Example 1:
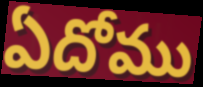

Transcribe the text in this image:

ఏదోము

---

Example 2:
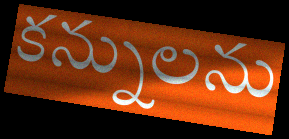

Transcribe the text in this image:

కన్నులను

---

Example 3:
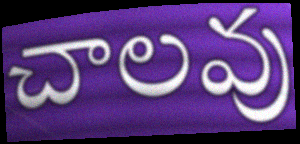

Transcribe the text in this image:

చాలవు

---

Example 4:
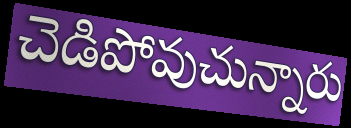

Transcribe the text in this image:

చెడిపోవుచున్నారు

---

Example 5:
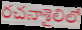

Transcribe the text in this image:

రచనాశైలిలో